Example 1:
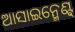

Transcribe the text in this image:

ଆସାଇନ୍ମେଣ୍ଟ୍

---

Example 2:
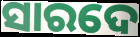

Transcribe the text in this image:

ସାରଦେ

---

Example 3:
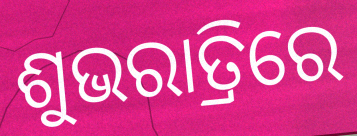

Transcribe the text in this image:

ଶୁଭରାତ୍ରିରେ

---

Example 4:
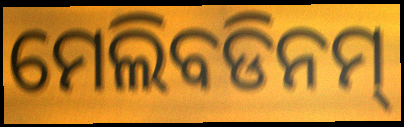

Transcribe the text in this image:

ମେଲିବଡିନମ୍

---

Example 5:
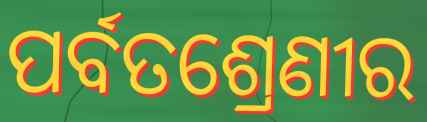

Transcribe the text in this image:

ପର୍ବତଶ୍ରେଣୀର